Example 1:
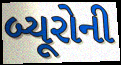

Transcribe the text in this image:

બ્યૂરોની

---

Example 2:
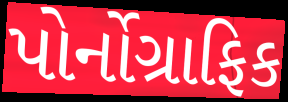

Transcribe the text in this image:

પોર્નોગ્રાફિક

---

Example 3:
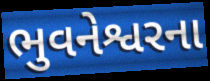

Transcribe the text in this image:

ભુવનેશ્વરના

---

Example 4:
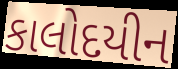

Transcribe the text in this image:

કાલોદયીન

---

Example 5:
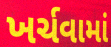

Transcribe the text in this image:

ખર્ચવામાં